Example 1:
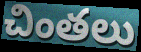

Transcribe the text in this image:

చింతలు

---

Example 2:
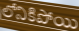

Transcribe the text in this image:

లోనికిపోయి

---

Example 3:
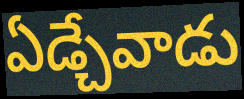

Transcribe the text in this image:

ఏడ్చేవాడు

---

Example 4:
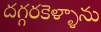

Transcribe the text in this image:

దగ్గరకెళ్ళాను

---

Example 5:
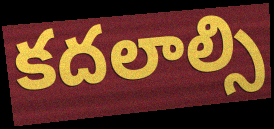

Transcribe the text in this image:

కదలాల్సి